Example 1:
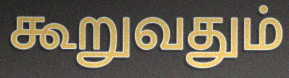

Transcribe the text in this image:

கூறுவதும்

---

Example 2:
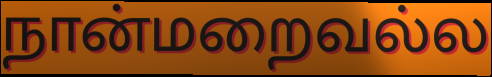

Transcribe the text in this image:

நான்மறைவல்ல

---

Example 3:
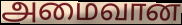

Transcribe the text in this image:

அமைவான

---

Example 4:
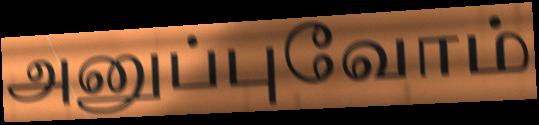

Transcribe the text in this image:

அனுப்புவோம்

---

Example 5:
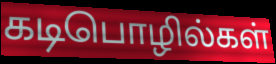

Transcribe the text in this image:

கடிபொழில்கள்